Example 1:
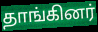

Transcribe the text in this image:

தாங்கினர்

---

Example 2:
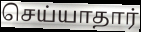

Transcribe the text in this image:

செய்யாதார்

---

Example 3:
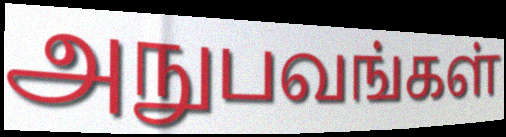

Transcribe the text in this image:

அநுபவங்கள்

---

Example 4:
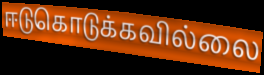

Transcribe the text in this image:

ஈடுகொடுக்கவில்லை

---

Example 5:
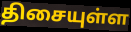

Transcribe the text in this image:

திசையுள்ள